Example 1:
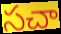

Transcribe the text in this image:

సచా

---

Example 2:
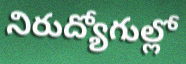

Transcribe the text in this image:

నిరుద్యోగుల్లో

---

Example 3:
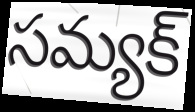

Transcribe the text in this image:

సమ్యక్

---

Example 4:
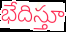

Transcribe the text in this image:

భేదిస్తూ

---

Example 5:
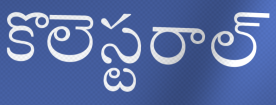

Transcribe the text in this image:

కొలెస్టరాల్